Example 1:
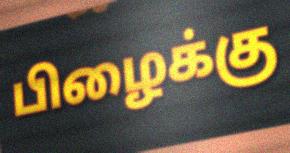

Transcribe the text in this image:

பிழைக்கு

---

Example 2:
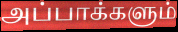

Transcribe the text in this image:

அப்பாக்களும்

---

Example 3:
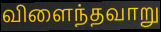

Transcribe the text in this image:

விளைந்தவாறு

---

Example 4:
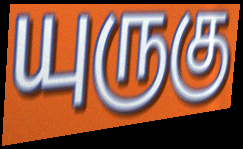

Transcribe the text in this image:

யுருகு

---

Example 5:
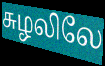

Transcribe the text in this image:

சுழலிலே